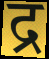
द्र